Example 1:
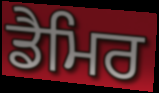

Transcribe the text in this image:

ਡੈਮਿਰ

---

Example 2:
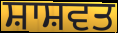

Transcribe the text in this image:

ਸ਼ਾਸ਼ਵਤ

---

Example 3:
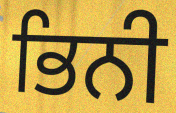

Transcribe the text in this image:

ਭਿਨੀ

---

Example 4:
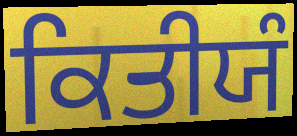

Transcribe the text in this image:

ਕਿਤੀਯੰ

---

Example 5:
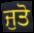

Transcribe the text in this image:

ਜੁਤੋ